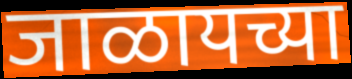
जाळायच्या